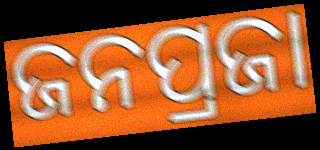
ଜନପ୍ରଜା